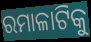
ରମାଳାଟିକୁ